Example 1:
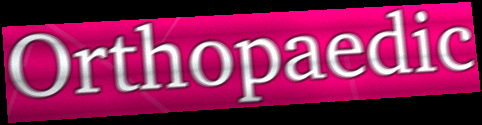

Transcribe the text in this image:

Orthopaedic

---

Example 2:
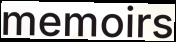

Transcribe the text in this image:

memoirs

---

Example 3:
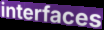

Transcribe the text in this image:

interfaces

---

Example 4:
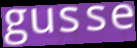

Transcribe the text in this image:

gusse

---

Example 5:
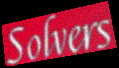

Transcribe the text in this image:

Solvers